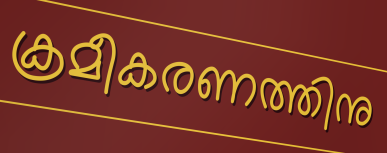
ക്രമീകരണത്തിനു